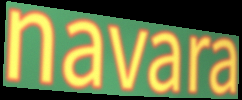
navara